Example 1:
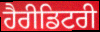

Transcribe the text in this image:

ਹੈਰੀਡਿਟਰੀ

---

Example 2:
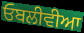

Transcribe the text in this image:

ਓਬਲੀਵੀਆ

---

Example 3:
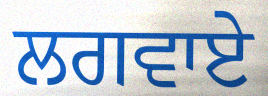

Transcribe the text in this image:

ਲਗਵਾਏ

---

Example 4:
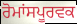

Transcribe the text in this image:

ਰੋਮਾਂਸਪੂਰਵਕ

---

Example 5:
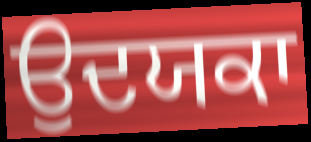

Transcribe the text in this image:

ਉਦਯਕਾ